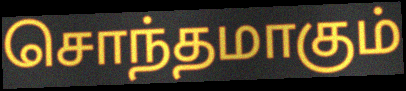
சொந்தமாகும்